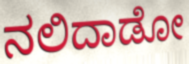
ನಲಿದಾಡೋ